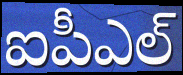
ఐపీఎల్